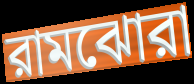
রামঝোরা